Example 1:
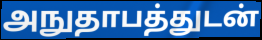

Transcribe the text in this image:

அநுதாபத்துடன்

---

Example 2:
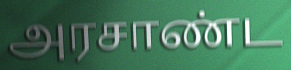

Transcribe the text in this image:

அரசாண்ட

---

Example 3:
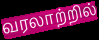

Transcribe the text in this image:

வரலாற்றில்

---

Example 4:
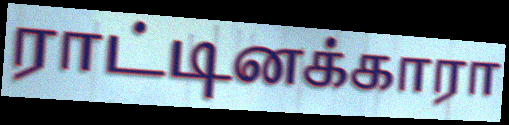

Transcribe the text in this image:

ராட்டினக்காரா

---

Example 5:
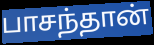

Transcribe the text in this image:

பாசந்தான்